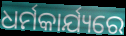
ଧର୍ମକାର୍ଯ୍ୟରେ